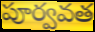
పూర్వవత